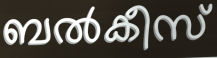
ബൽകീസ്